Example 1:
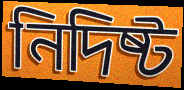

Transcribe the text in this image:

নিদিষ্ট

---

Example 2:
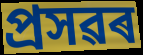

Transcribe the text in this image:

প্ৰসৱৰ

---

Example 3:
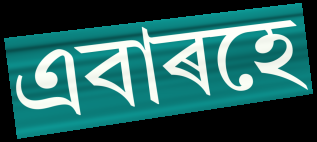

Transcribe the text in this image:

এবাৰহে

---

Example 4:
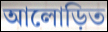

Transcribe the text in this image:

আলোড়িত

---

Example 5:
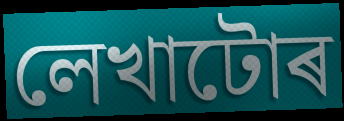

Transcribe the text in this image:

লেখাটোৰ